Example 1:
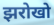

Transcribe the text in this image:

झरोखो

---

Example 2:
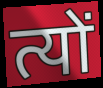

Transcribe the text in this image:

त्यों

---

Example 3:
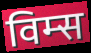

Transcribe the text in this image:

विम्स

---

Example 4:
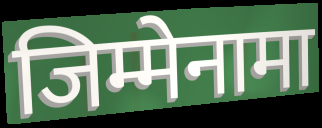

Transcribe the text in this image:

जिम्मेनामा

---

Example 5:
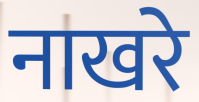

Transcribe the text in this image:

नाखरे